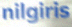
nilgiris